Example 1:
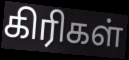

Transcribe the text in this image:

கிரிகள்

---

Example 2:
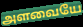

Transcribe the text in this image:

அளவையே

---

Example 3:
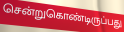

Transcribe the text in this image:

சென்றுகொண்டிருப்பது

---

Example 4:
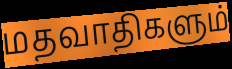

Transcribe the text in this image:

மதவாதிகளும்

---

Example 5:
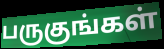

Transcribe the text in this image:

பருகுங்கள்